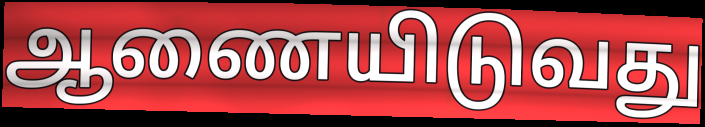
ஆணையிடுவது